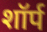
शॉर्प